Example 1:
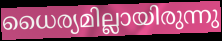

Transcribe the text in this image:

ധൈര്യമില്ലായിരുന്നു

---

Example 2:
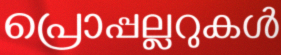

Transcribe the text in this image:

പ്രൊപ്പല്ലറുകൾ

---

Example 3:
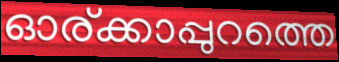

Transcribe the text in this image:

ഓര്ക്കാപ്പുറത്തെ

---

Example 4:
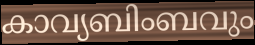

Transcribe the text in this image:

കാവ്യബിംബവും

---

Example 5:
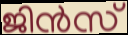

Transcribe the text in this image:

ജിൻസ്